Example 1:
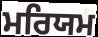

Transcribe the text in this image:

ਮਰਿਯਮ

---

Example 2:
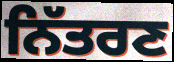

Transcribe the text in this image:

ਨਿੱਤਰਣ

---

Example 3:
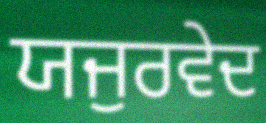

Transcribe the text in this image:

ਯਜੁਰਵੇਦ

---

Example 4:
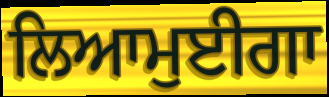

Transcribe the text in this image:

ਲਿਆਮੁਈਗਾ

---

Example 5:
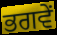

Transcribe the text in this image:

ਭਗਵੇਂ